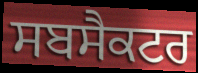
ਸਬਸੈਕਟਰ